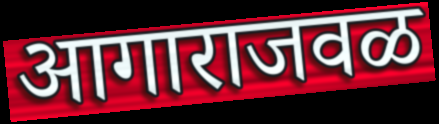
आगाराजवळ